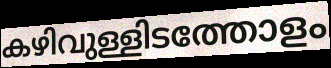
കഴിവുള്ളിടത്തോളം